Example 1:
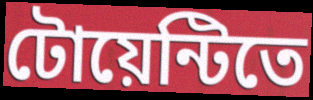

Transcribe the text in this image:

টোয়েন্টিতে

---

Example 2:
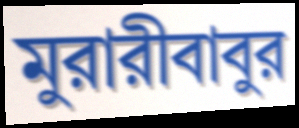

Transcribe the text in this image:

মুরারীবাবুর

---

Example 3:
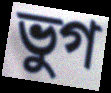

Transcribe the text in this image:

ভুগ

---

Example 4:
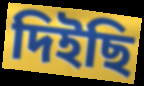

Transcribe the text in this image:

দিইছি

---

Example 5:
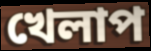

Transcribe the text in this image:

খেলাপ